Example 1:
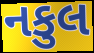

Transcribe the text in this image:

નકુલ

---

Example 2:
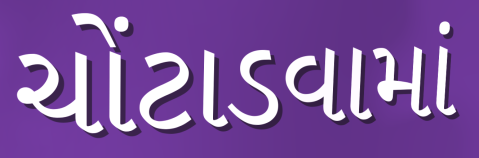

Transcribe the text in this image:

ચોંટાડવામાં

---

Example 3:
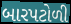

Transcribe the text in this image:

બારપટોળી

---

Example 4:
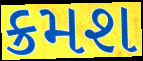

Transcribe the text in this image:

ક્રમશ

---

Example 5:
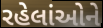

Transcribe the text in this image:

રહેલાંઓને